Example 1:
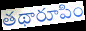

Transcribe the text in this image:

తథారూపిం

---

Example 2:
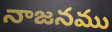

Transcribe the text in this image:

నాజనము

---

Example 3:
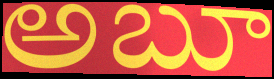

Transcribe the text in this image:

అబూ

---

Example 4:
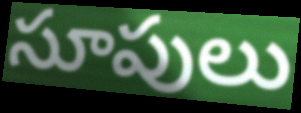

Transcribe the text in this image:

సూపులు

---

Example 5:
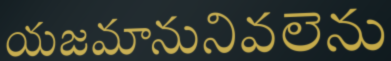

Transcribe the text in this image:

యజమానునివలెను